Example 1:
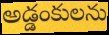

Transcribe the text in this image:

అడ్డంకులను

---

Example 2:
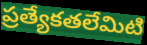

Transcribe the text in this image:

ప్రత్యేకతలేమిటి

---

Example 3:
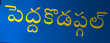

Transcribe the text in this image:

పెద్దకొడప్గల్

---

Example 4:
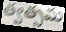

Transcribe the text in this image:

త్వత్సమ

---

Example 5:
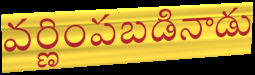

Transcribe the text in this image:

వర్ణింపబడినాడు